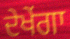
ਦੇਖੇਂਗਾ